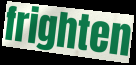
frighten